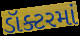
ડૉક્ટરમાં